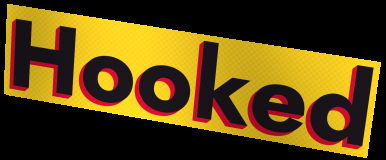
Hooked